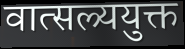
वात्सल्ययुक्त